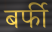
बर्फी